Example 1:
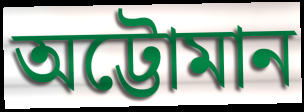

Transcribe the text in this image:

অট্টোমান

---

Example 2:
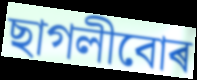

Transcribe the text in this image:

ছাগলীবোৰ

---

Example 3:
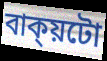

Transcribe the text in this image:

বাক্য়টো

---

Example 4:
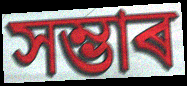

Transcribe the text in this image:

সম্ভাৰ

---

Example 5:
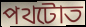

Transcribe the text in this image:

পথটোত